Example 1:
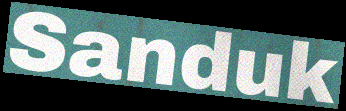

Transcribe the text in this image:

Sanduk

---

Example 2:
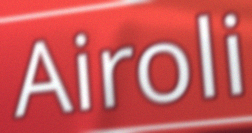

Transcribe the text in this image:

Airoli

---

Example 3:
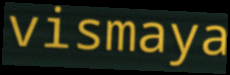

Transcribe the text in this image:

vismaya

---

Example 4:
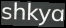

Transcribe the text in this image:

shkya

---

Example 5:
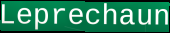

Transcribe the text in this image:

Leprechaun